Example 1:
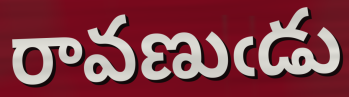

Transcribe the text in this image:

రావణుఁడు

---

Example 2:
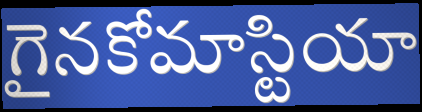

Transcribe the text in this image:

గైనకోమాస్టియా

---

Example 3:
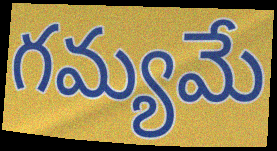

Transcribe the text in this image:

గమ్యమే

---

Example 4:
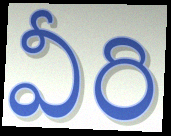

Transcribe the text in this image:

వీరి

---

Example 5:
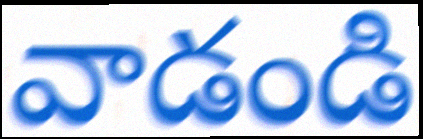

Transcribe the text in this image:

వాడండి